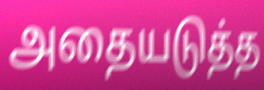
அதையடுத்த